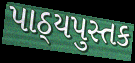
પાઠ્યપુસ્તક